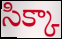
సిక్కా